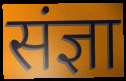
संज्ञा